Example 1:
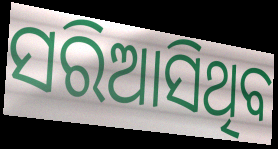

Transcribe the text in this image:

ସରିଆସିଥିବ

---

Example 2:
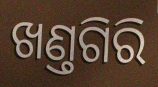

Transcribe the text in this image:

ଖଣ୍ତଗିରି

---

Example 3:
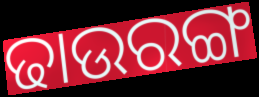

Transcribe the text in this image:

ଢାଉରଙ୍ଗ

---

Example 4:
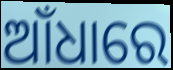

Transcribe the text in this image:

ଆଁଧାରେ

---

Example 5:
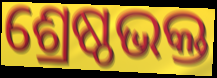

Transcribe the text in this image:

ଶ୍ରେଷ୍ଠଭକ୍ତ